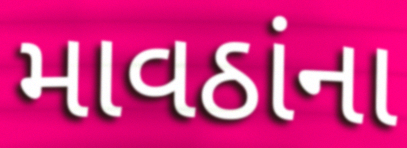
માવઠાંના